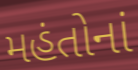
મહંતોનાં